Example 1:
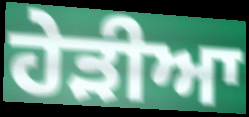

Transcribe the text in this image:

ਹੇੜੀਆ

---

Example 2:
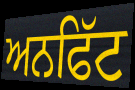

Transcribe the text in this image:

ਅਨਫਿੱਟ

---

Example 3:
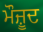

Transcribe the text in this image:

ਮੌਜ਼ੂਦ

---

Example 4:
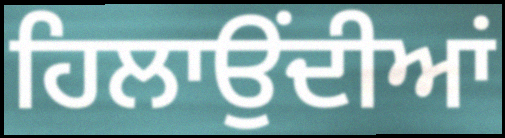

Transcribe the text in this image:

ਹਿਲਾਉਂਦੀਆਂ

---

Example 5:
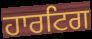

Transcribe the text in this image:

ਹਾਰਟਿਗ